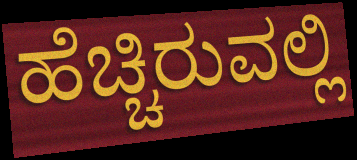
ಹೆಚ್ಚಿರುವಲ್ಲಿ